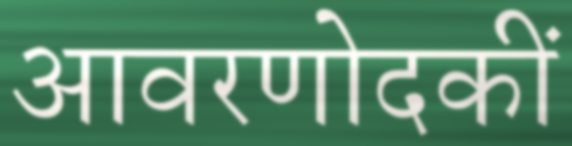
आवरणोदकीं